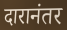
दारानंतर